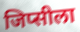
जिप्सीला